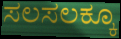
ಸಲಸಲಕ್ಕೂ